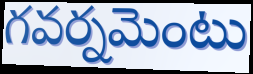
గవర్నమెంటు